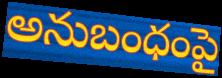
అనుబంధంపై